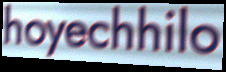
hoyechhilo